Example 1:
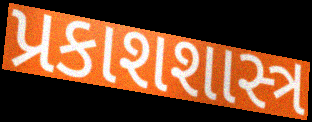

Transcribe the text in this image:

પ્રકાશશાસ્ત્ર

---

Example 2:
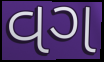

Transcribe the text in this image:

વગ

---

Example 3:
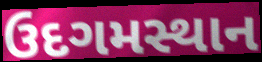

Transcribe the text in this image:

ઉદગમસ્થાન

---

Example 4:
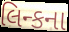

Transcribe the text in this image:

લિન્કના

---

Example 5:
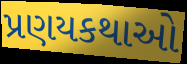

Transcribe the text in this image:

પ્રણયકથાઓ